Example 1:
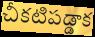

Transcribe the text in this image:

చీకటిపడ్డాక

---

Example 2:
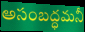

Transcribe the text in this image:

అసంబద్ధమనీ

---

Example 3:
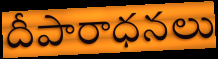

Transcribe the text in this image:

దీపారాధనలు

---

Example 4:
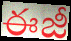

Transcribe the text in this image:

ఈజీ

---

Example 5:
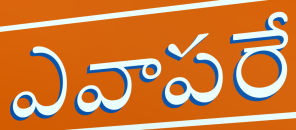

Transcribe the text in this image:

ఎవాపరే